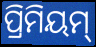
ପ୍ରିମିୟମ୍